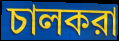
চালকরা